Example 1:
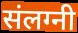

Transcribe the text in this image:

संलग्नी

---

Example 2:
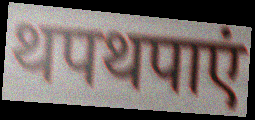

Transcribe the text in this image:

थपथपाएं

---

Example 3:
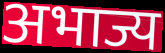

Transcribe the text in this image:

अभाज्य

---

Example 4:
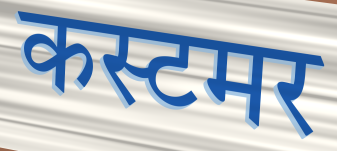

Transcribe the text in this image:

कस्‍टमर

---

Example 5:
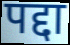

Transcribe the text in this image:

पद्दा